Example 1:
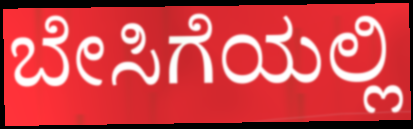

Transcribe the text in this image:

ಬೇಸಿಗೆಯಲ್ಲಿ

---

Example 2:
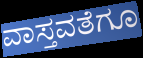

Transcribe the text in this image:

ವಾಸ್ತವತೆಗೂ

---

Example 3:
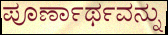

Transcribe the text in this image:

ಪೂರ್ಣಾರ್ಥವನ್ನು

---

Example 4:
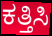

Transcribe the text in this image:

ಕತ್ತಿಸಿ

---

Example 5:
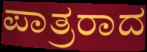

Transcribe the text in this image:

ಪಾತ್ರರಾದ